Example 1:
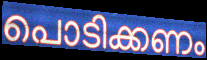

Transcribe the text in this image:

പൊടിക്കണം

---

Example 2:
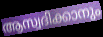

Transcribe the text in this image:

ആസ്വദിക്കാനും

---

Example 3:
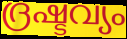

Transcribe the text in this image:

ദ്രഷ്ടവ്യം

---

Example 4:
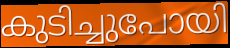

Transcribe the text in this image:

കുടിച്ചുപോയി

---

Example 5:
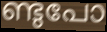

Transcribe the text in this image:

ണ്ടുപോ